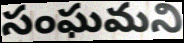
సంఘమని